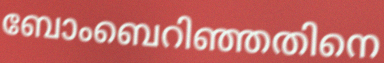
ബോംബെറിഞ്ഞതിനെ